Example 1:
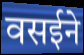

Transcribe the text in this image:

वसईने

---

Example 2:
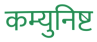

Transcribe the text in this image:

कम्युनिष्ट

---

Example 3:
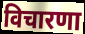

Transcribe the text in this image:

विचारणा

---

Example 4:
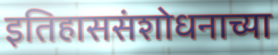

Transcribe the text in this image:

इतिहाससंशोधनाच्या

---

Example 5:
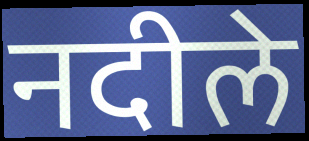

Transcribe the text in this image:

नदीले